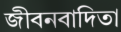
জীবনবাদিতা